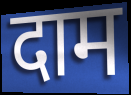
दाम